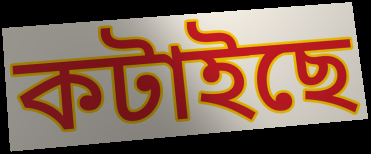
কটাইছে